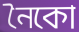
নৈকো